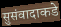
सुसंवादाकडे